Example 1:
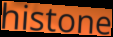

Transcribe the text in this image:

histone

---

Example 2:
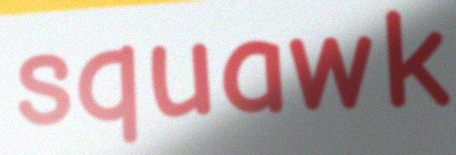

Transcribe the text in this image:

squawk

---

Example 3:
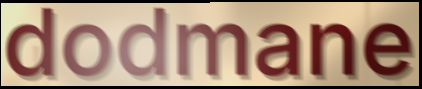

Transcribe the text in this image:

dodmane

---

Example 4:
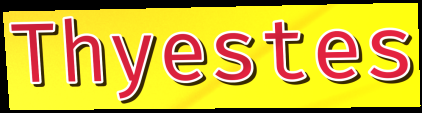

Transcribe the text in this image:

Thyestes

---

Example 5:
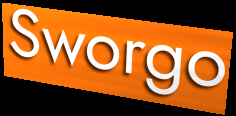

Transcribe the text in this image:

Sworgo